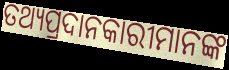
ତଥ୍ୟପ୍ରଦାନକାରୀମାନଙ୍କ